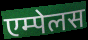
एम्पेलस